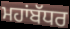
ਮਹਾਂਬੱਧਰ